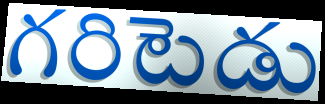
గరిటెడు